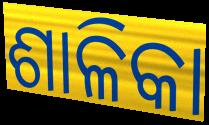
ଶାଳିକା